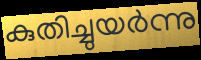
കുതിച്ചുയർന്നു